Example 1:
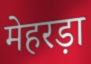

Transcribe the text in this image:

मेहरड़ा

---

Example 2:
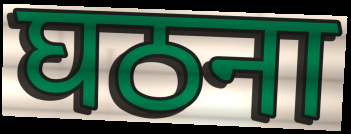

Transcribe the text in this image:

घठना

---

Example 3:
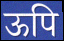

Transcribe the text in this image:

ऊपि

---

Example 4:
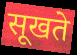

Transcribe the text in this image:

सूखते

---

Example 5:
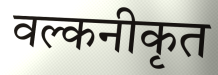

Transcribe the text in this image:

वल्कनीकृत